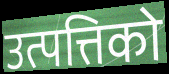
उत्पत्तिको